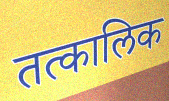
तत्कालिक